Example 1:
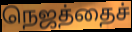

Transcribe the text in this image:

நெஜத்தைச்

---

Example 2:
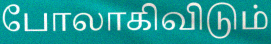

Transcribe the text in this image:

போலாகிவிடும்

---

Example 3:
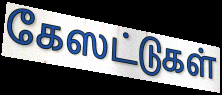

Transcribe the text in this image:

கேஸட்டுகள்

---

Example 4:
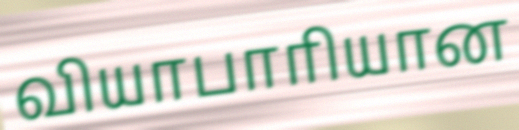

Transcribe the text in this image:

வியாபாரியான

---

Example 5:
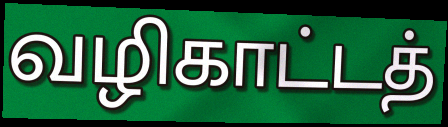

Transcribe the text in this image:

வழிகாட்டத்